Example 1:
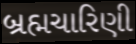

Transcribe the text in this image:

બ્રહ્મચારિણી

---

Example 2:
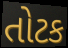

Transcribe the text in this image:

તોટક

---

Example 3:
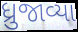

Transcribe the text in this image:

ધ્રુજાવ્યા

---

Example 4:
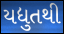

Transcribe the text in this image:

યદ્યુતથી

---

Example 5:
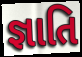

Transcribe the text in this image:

જ્ઞાતિ